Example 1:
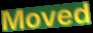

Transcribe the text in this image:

Moved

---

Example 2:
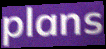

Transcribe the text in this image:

plans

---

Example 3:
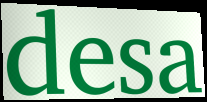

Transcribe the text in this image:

desa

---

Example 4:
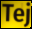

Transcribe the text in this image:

Tej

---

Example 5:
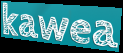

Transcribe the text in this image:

kawea